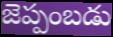
జెప్పంబడు